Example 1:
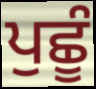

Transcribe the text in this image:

ਪੁਛੂੰ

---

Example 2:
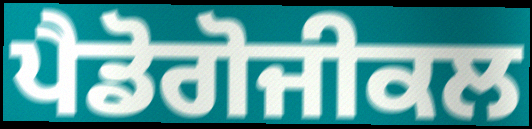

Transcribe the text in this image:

ਪੈਡੋਗੋਜੀਕਲ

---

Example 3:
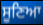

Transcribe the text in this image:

ਸੂਣਿਆ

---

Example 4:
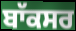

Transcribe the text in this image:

ਬਾੱਕਸਰ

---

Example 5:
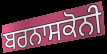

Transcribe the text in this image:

ਬਰਨਾਸਕੋਨੀ